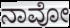
ನಾವೋ